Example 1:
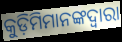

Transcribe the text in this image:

କୁଡ଼ିମିମାନଙ୍କଦ୍ୱାରା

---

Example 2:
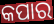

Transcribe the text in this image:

କପାର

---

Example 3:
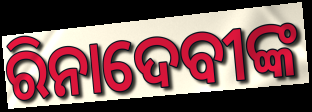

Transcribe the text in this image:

ରିନାଦେବୀଙ୍କ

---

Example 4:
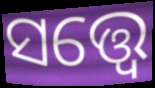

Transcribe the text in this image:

ସତ୍ତ୍ବେ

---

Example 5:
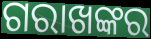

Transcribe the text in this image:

ଗରାଖଙ୍କର